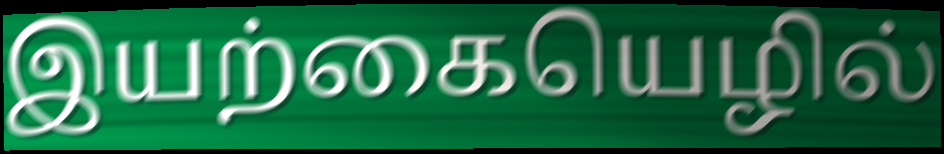
இயற்கையெழில்